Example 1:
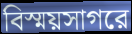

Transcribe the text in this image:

বিস্ময়সাগরে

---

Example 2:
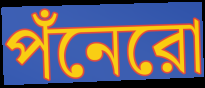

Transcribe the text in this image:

পঁনেরো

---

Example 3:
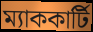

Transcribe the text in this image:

ম্যাককার্টি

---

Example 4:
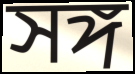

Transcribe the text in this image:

সঙ্গ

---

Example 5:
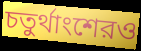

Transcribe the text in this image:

চতুর্থাংশেরও